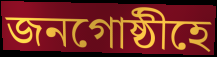
জনগোষ্ঠীহে